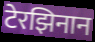
टेरझिनान